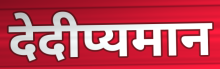
देदीप्यमान